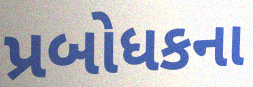
પ્રબોધકના